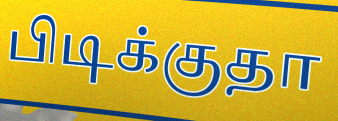
பிடிக்குதா